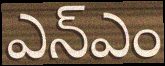
ఎన్ఎం